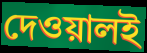
দেওয়ালই